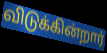
விடுக்கின்றார்